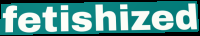
fetishized